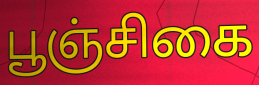
பூஞ்சிகை